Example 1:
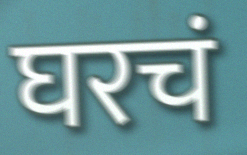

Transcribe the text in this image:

घरचं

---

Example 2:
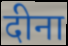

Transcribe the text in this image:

दीना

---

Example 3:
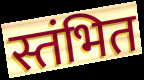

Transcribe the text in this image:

स्तंभित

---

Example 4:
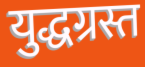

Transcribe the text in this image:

युद्धग्रस्त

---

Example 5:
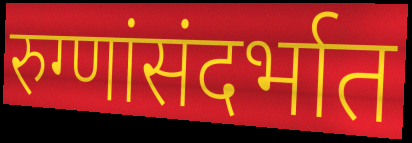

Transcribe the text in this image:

रुग्णांसंदर्भात